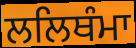
ਲਲਿਥੰਮਾ